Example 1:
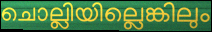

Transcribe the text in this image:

ചൊല്ലിയില്ലെങ്കിലും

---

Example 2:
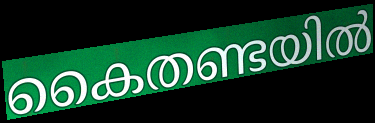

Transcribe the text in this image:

കൈതണ്ടയിൽ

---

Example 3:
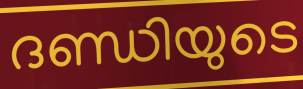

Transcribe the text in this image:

ദണ്ഡിയുടെ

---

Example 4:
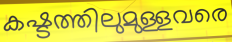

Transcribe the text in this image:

കഷ്ടത്തിലുമുള്ളവരെ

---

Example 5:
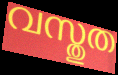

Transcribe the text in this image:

വസ്തുത